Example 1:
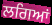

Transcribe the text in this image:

ਲਗਿਆਂ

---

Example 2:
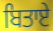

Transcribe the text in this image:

ਬਿਤਾਏ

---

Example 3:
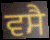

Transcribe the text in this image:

ਵਸੈ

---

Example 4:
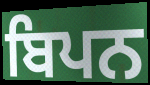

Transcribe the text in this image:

ਬਿਪਨ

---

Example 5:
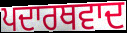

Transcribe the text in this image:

ਪਦਾਰਥਵਾਦ